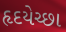
હૃદયેચ્છા